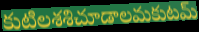
కుటిలశశిచూడాలమకుటమ్